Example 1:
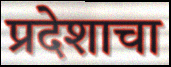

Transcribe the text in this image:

प्रदेशाचा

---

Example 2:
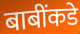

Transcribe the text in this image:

बाबींकडे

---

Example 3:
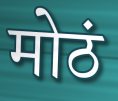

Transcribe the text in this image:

मोठं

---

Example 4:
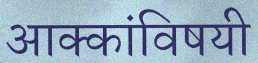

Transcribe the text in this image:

आक्कांविषयी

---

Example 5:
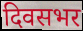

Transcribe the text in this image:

दिवसभर